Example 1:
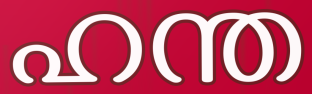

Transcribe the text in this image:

ഹന്ത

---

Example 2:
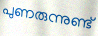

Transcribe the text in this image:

പുണരുന്നുണ്ട്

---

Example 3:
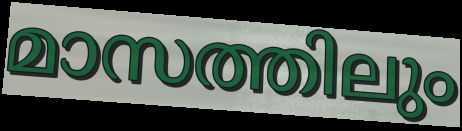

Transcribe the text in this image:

മാസത്തിലും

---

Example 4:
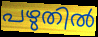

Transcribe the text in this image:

പഴുതിൽ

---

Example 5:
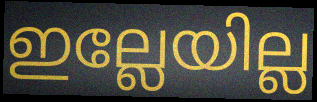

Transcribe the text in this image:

ഇല്ലേയില്ല